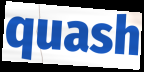
quash